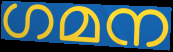
ഗമന